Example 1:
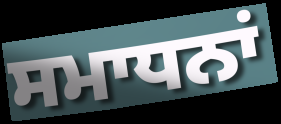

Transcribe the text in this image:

ਸਮਾਧਨਾਂ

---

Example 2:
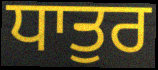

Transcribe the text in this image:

ਧਾਤੁਰ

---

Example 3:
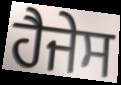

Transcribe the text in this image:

ਹੈਜੇਸ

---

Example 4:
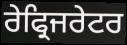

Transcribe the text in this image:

ਰੇਫ੍ਰਿਜਰੇਟਰ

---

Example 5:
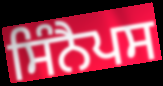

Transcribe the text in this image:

ਸਿੰਨੈਪਸ